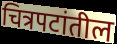
चित्रपटांतील